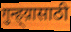
गुन्ह्य़ासाठी